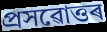
প্ৰসৱোত্তৰ